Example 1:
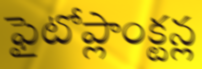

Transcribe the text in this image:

ఫైటోప్లాంక్టన్ల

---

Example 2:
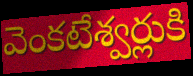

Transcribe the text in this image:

వెంకటేశ్వర్లుకి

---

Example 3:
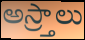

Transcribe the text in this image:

అస్ర్తాలు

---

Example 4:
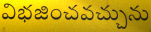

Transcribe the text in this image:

విభజించవచ్చును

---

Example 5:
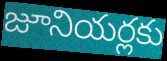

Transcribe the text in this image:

జూనియర్లకు